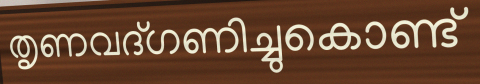
തൃണവദ്ഗണിച്ചുകൊണ്ട്